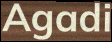
Agadi